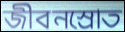
জীবনস্রোত